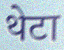
थेटा